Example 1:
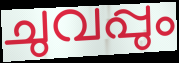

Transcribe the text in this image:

ചുവപ്പും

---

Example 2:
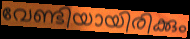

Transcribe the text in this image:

വേണ്ടിയായിരിക്കും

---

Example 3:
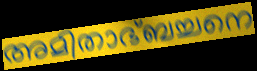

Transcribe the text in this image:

അമിതാഭ്ബച്ചനെ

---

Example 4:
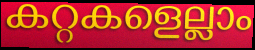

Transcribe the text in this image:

കറ്റകളെല്ലാം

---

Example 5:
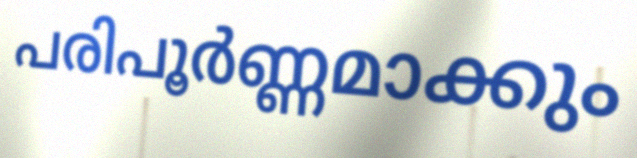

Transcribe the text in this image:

പരിപൂർണ്ണമാക്കും